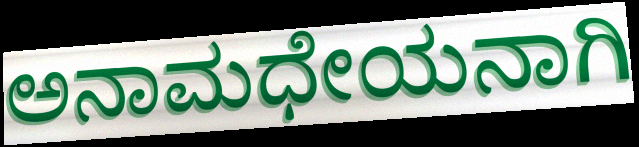
ಅನಾಮಧೇಯನಾಗಿ